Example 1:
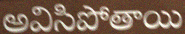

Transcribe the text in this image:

అవిసిపోతాయి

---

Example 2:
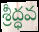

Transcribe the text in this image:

శ్రీద్ధవ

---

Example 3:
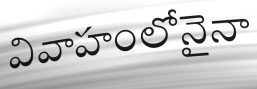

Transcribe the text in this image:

వివాహంలోనైనా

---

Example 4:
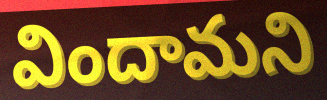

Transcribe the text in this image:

విందామని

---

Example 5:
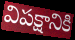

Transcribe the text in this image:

విపక్షానికి